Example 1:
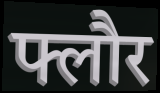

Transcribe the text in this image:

फ्लौर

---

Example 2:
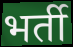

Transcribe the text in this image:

भर्ती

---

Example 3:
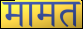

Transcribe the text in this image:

मामत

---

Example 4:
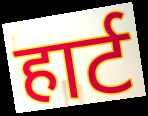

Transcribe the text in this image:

हार्ट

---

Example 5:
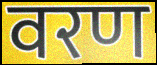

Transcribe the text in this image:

वरण